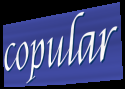
copular